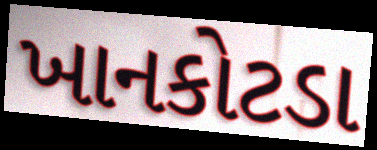
ખાનકોટડા